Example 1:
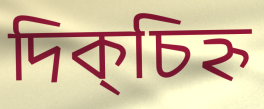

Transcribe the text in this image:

দিক্‌চিহ্ন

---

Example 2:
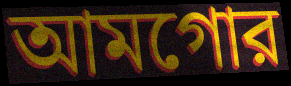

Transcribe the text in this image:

আমগোর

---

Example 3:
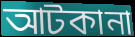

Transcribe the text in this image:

আটকানা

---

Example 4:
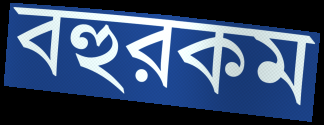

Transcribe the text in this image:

বহুরকম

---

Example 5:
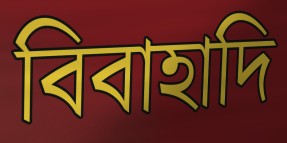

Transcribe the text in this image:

বিবাহাদি